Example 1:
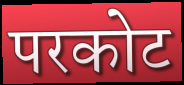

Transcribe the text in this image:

परकोट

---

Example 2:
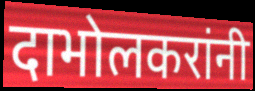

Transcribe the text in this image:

दाभोलकरांनी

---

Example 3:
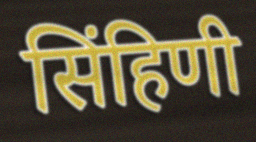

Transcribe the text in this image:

सिंहिणी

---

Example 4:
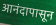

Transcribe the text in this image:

आनंदापासून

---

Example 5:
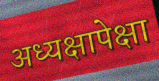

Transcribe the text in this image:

अध्यक्षापेक्षा